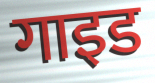
गाइड